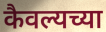
कैवल्यच्या